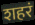
शहरं